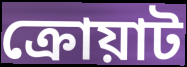
ক্রোয়াট